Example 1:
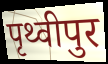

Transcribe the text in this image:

पृथ्वीपुर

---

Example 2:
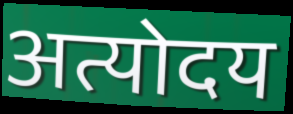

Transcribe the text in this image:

अत्योदय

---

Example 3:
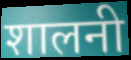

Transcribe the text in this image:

शालनी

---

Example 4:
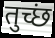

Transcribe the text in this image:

तुच्छं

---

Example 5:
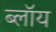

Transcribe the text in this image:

ब्लॉय